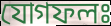
যোগফলঃ